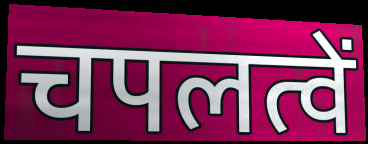
चपलत्वें